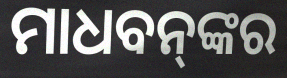
ମାଧବନ୍‌ଙ୍କର